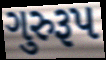
ગુરુરૂપ